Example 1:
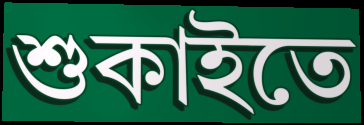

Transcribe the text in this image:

শুকাইতে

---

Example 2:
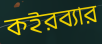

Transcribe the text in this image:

কইরব্যার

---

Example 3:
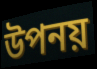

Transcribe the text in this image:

উপনয়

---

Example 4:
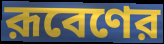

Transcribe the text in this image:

রূবেণের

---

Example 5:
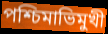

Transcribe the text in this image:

পশ্চিমাভিমুখী